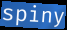
spiny